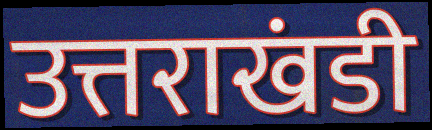
उत्तराखंडी